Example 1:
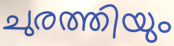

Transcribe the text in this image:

ചുരത്തിയും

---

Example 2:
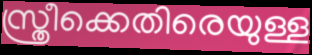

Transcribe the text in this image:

സ്ത്രീക്കെതിരെയുള്ള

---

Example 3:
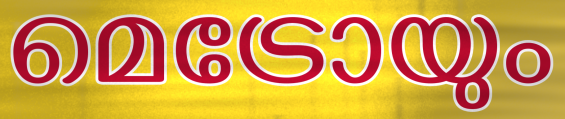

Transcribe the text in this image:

മെട്രോയും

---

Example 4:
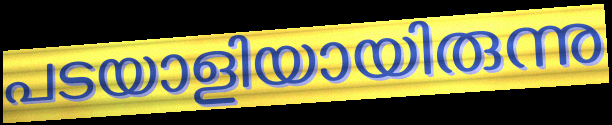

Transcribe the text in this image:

പടയാളിയായിരുന്നു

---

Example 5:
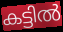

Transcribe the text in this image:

കട്ടിൽ